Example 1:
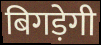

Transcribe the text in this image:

बिगड़ेगी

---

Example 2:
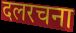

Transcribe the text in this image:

दलरचना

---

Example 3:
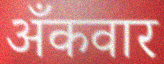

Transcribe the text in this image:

अँकवार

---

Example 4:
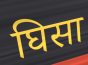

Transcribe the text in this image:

घिसा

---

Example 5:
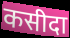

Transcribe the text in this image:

कसीदा